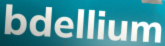
bdellium